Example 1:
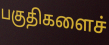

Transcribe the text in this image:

பகுதிகளைச்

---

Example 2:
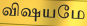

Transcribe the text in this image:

விஷயமே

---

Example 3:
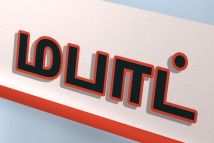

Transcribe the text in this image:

மபாட்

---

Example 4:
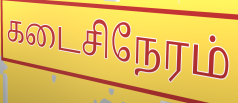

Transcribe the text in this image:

கடைசிநேரம்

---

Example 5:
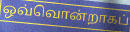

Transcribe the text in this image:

ஒவ்வொன்றாகப்